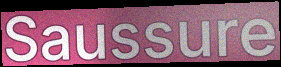
Saussure